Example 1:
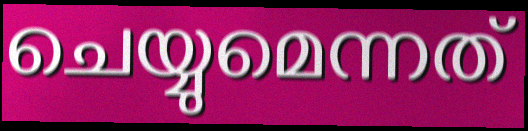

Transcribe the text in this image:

ചെയ്യുമെന്നത്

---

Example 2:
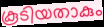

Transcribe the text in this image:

കൂടിയതാകും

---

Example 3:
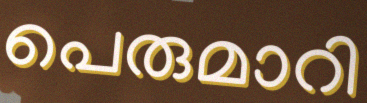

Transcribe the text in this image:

പെരുമാറി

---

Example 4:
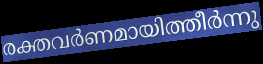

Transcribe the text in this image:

രക്തവർണമായിത്തീർന്നു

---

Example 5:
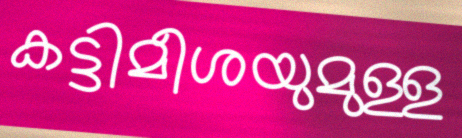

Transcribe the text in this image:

കട്ടിമീശയുമുള്ള